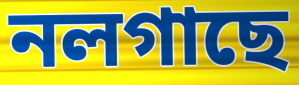
নলগাছে